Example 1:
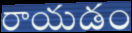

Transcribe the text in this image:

రాయడం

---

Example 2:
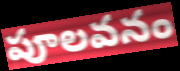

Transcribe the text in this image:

పూలవనం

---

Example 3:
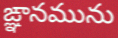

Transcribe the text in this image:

ఙ్ఞానమును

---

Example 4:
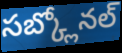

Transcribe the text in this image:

సబ్క్లోనల్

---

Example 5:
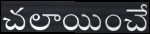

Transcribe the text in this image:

చలాయించే